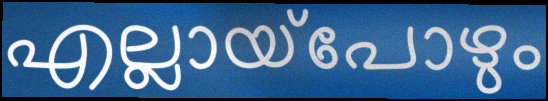
എല്ലായ്‌പോഴും